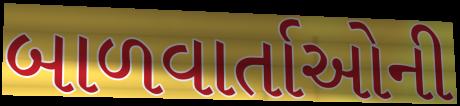
બાળવાર્તાઓની